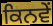
ਕਿਨਵੇਂ